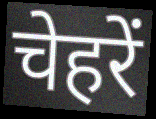
चेहरें